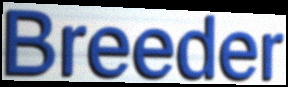
Breeder